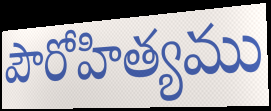
పౌరోహిత్యము